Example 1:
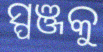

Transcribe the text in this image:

ସ୍ପଞ୍ଜକୁ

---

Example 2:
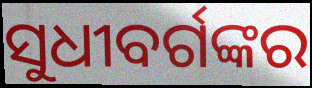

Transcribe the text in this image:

ସୁଧୀବର୍ଗଙ୍କର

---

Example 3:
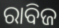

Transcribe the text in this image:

ରାବିଜ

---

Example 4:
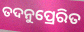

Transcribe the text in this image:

ତଦନୁପ୍ରେରିତ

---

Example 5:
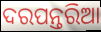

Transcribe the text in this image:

ଦରପନ୍ତରିଆ